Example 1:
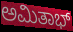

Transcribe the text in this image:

ಅಮಿತಾಭ್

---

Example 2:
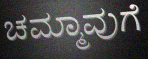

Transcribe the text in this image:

ಚಮ್ಮಾವುಗೆ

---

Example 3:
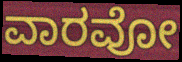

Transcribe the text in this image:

ವಾರವೋ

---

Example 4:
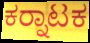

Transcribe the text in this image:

ಕರ‍್ನಾಟಕ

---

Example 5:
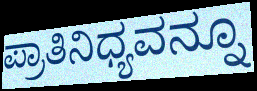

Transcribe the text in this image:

ಪ್ರಾತಿನಿಧ್ಯವನ್ನೂ